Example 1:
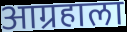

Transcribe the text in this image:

आग्रहाला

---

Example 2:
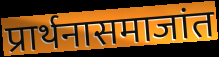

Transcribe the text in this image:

प्रार्थनासमाजांत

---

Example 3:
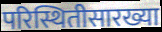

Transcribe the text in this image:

परिस्थितीसारख्या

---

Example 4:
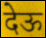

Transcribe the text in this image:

देऊ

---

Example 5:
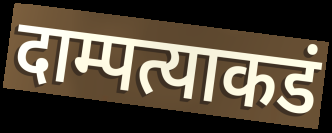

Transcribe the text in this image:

दाम्पत्याकडं